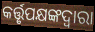
କର୍ତ୍ତୃପକ୍ଷଙ୍କଦ୍ଵାରା